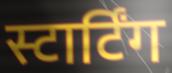
स्टार्टिंग